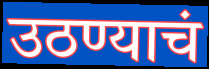
उठण्याचं